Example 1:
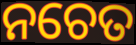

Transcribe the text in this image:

ନଚେତ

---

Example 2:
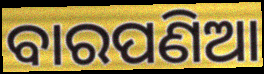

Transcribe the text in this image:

ବାରପଣିଆ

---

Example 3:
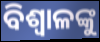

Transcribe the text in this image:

ବିଶ୍ୱାଳଙ୍କୁ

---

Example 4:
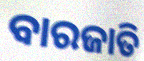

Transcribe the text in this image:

ବାରଜାତି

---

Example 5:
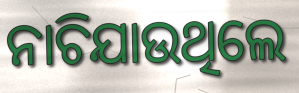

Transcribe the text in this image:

ନାଚିଯାଉଥିଲେ